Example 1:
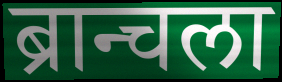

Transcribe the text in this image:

ब्रान्चला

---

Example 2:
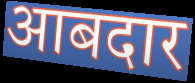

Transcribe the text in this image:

आबदार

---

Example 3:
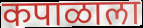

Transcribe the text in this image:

कपाळाला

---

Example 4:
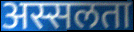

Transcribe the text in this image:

अस्सलता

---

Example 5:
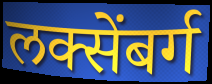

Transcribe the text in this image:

लक्सेंबर्ग